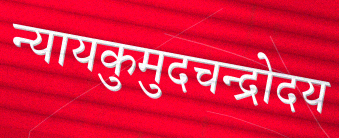
न्यायकुमुदचन्द्रोदय